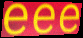
eee